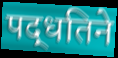
पद्धतिने